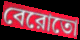
বেরোতো